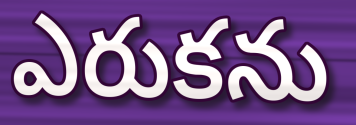
ఎరుకను